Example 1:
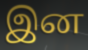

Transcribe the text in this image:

இன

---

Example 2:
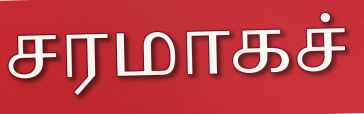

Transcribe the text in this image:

சரமாகச்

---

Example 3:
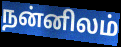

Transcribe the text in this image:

நன்னிலம்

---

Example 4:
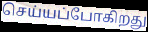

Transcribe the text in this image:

செய்யப்போகிறது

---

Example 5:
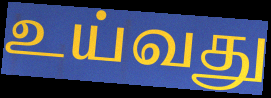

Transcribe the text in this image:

உய்வது